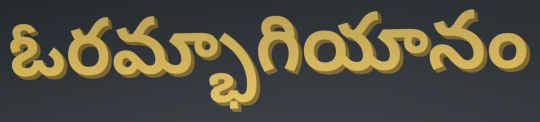
ఓరమ్భాగియానం